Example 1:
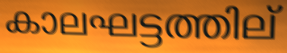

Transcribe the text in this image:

കാലഘട്ടത്തില്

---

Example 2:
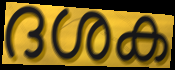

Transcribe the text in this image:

ദശക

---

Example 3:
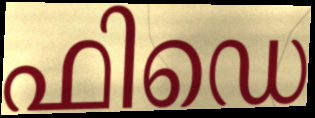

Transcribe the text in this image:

ഫിഡെ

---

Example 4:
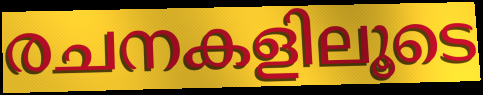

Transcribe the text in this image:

രചനകളിലൂടെ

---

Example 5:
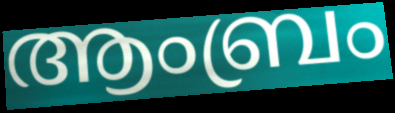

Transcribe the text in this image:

ആംബ്രം